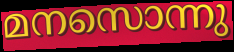
മനസൊന്നു